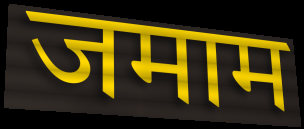
जमाम